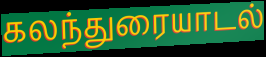
கலந்துரையாடல்